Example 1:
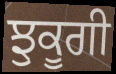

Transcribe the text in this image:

ਝੁਕੂਗੀ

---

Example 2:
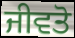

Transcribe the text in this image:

ਜੀਵਤੋ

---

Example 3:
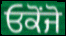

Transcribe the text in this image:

ਓਕੋਂਜੋ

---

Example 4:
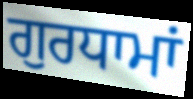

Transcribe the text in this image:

ਗੁਰਧਾਮਾਂ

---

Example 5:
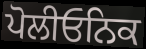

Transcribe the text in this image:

ਪੋਲੀਓਨਿਕ